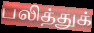
பலித்துக்